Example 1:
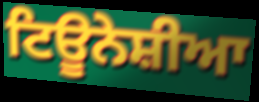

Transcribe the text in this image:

ਟਿਊਨੇਸ਼ੀਆ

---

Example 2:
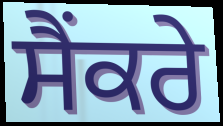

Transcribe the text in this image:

ਸੈਂਕਰੇ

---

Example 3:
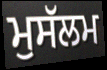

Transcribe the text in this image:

ਮੁਸੱਲਮ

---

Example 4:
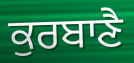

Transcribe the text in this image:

ਕੁਰਬਾਣੈ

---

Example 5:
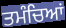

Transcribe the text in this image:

ਤਮੰਚਿਆਂ